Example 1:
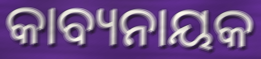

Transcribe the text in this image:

କାବ୍ୟନାୟକ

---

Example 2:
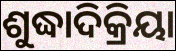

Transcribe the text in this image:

ଶୁଦ୍ଧାଦିକ୍ରିୟା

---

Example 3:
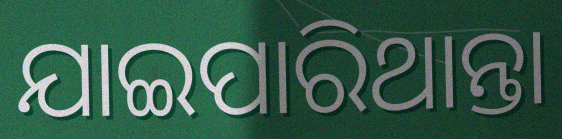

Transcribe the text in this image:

ଯାଇପାରିଥାନ୍ତା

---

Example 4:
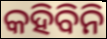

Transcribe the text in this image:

କହିବିନି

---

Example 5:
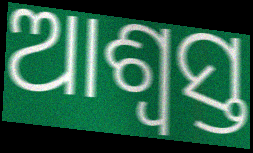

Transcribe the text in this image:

ଆଶ୍ବସ୍ତ